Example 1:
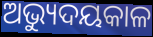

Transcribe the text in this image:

ଅଭ୍ୟୁଦୟକାଳ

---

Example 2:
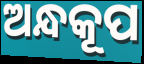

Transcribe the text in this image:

ଅନ୍ଧକୂପ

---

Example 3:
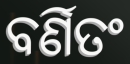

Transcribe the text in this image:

ବର୍ଣିତଂ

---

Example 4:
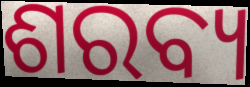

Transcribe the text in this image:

ଶରବ୍ୟ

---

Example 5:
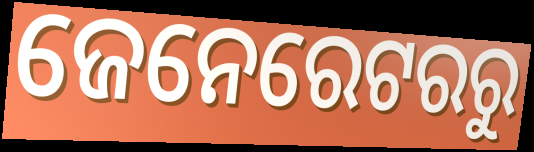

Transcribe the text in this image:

ଜେନେରେଟରରୁ